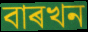
বাৰখন